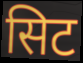
सिट